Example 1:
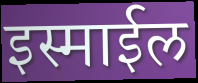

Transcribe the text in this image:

इस्माईल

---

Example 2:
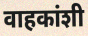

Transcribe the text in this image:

वाहकांशी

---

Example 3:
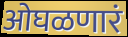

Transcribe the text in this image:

ओघळणारं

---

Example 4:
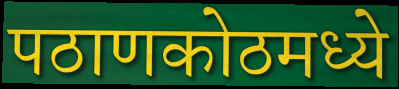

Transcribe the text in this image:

पठाणकोठमध्ये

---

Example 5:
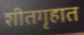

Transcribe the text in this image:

शीतगृहात